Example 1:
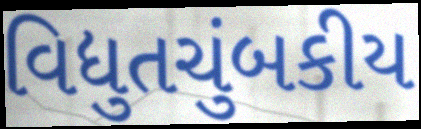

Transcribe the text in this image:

વિદ્યુતચુંબકીય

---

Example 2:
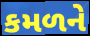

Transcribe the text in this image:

કમળને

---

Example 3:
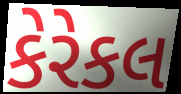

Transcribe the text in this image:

કેરેકલ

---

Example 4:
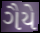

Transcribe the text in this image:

ગૈયે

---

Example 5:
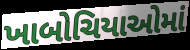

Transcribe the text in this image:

ખાબોચિયાઓમાં